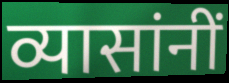
व्यासांनीं